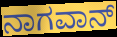
ನಾಗವಾನ್